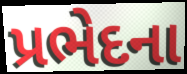
પ્રભેદના